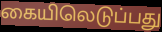
கையிலெடுப்பது